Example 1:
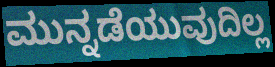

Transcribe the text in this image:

ಮುನ್ನಡೆಯುವುದಿಲ್ಲ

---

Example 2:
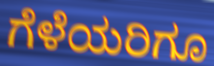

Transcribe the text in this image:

ಗೆಳೆಯರಿಗೂ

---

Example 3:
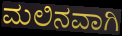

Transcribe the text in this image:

ಮಲಿನವಾಗಿ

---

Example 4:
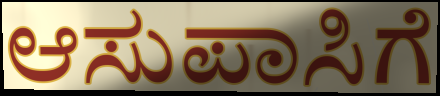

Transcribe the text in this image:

ಆಸುಪಾಸಿಗೆ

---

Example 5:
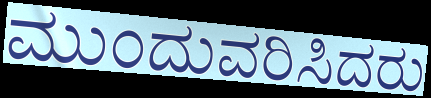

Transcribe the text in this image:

ಮುಂದುವರಿಸಿದರು